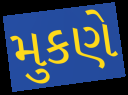
મુકણે